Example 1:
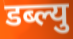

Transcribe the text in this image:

डब्ल्यु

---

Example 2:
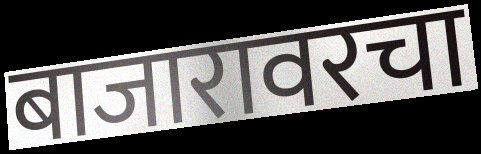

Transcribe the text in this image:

बाजारावरचा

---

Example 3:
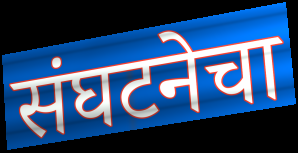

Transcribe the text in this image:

संघटनेचा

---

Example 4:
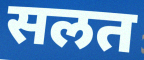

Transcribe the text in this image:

सलत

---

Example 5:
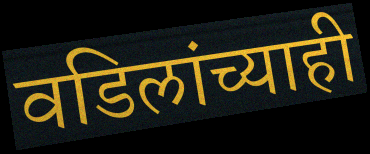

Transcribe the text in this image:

वडिलांच्याही